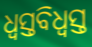
ଧ୍ୱସ୍ତବିଧ୍ୱସ୍ତ